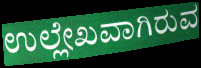
ಉಲ್ಲೇಖವಾಗಿರುವ